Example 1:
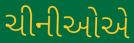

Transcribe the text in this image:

ચીનીઓએ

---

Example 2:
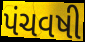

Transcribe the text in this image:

પંચવષી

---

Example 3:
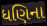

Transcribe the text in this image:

ધણિના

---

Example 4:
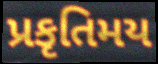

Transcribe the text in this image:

પ્રકૃતિમય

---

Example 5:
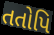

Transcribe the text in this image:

તતોપિ